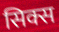
सिक्स